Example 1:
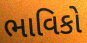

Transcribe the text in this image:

ભાવિકો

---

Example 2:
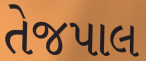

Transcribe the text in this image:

તેજપાલ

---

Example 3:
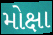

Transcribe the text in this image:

મોક્ષા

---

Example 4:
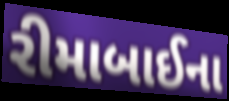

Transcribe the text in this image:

રીમાબાઈના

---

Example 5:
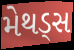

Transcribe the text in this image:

મેથડ્સ